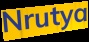
Nrutya